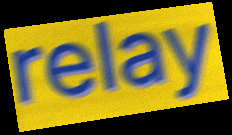
relay